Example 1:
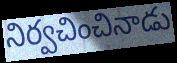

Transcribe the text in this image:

నిర్వచించినాడు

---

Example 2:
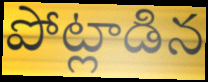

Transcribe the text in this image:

పోట్లాడిన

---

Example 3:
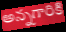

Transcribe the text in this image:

అన్నగారికి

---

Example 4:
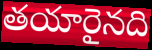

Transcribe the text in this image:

తయారైనది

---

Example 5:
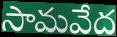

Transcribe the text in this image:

సామవేద